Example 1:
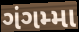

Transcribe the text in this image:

ગંગમ્મા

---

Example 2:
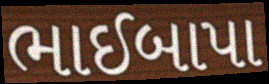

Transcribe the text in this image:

ભાઈબાપા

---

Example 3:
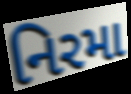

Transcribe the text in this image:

નિરમા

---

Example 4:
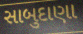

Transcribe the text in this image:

સાબુદાણા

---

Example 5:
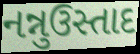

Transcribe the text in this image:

નન્નુઉસ્તાદ